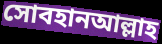
সোবহানআল্লাহ